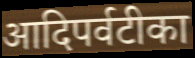
आदिपर्वटीका